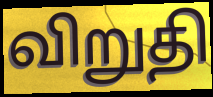
விறுதி